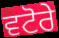
ਵਟੋਰੇ